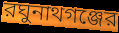
রঘুনাথগঞ্জের